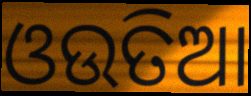
ଓଉତିଆ